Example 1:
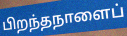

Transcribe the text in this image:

பிறந்தநாளைப்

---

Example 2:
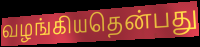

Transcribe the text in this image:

வழங்கியதென்பது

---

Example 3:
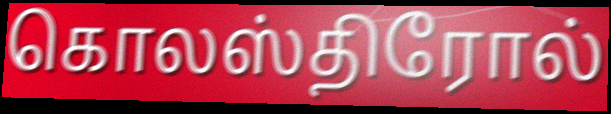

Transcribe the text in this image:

கொலஸ்திரோல்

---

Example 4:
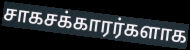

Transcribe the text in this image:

சாகசக்காரர்களாக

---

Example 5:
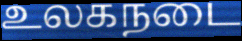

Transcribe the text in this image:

உலகநடை